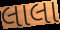
લાલા